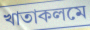
খাতাকলমে